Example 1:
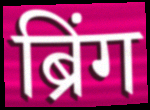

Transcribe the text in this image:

ब्रिंग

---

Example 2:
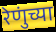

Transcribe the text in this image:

रेणुंच्या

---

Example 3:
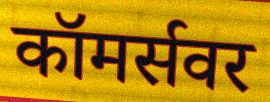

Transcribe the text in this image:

कॉमर्सवर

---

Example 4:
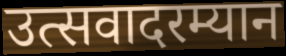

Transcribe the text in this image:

उत्सवादरम्यान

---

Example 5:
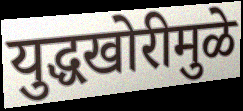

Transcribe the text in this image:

युद्धखोरीमुळे